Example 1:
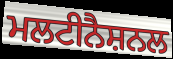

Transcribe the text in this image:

ਮਲਟੀਨੈਸ਼ਨਲ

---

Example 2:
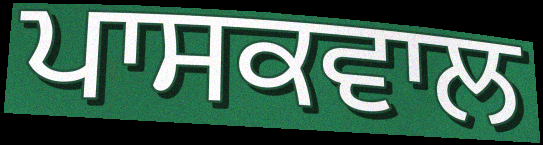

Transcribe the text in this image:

ਪਾਸਕਵਾਲ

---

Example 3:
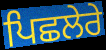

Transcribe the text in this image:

ਪਿਛਲੇਰੇ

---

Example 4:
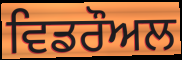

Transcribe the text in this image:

ਵਿਡਰੌਅਲ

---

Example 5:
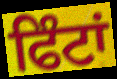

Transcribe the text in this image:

ਫਿੰਟਾਂ